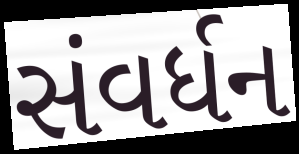
સંવર્ધન